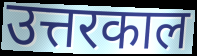
उत्तरकाल